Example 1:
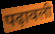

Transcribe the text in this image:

पढ़ावली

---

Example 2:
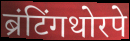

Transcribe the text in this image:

ब्रंटिंगथोरपे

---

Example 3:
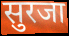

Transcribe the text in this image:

सुरजा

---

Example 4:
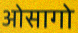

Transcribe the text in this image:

ओसागो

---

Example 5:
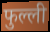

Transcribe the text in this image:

फुल्ली